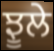
ਝੂਲੇ